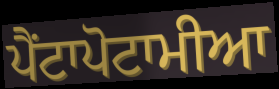
ਪੈਂਟਾਪੋਟਾਮੀਆ